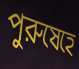
পুৰুষেহে